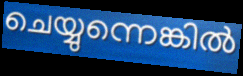
ചെയ്യുന്നെങ്കിൽ